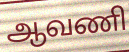
ஆவணி